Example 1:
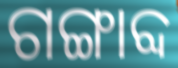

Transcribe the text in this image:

ଗଙ୍ଗାବ୍ଦ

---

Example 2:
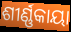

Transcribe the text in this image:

ଶୀର୍ଣ୍ଣକାୟା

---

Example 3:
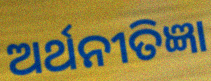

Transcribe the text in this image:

ଅର୍ଥନୀତିଜ୍ଞା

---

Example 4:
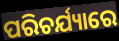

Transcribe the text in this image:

ପରିଚର୍ଯ୍ୟାରେ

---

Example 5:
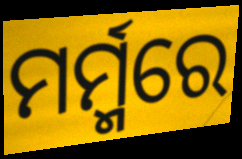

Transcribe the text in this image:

ମର୍ମ୍ମରେ